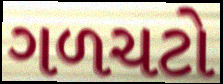
ગળચટો